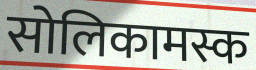
सोलिकामस्क